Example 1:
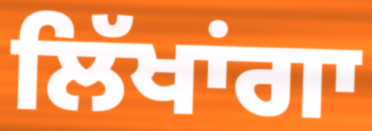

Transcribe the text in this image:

ਲਿੱਖਾਂਗਾ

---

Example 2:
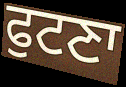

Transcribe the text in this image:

ਫੁਟਣਾ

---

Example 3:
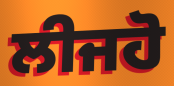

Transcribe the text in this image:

ਲੀਜਹੋ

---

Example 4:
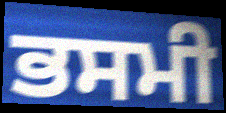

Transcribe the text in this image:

ਭਸਮੀ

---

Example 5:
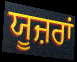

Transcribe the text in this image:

ਯੂਜ਼ਰਾਂ